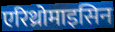
एरिथ्रोमाइसिन